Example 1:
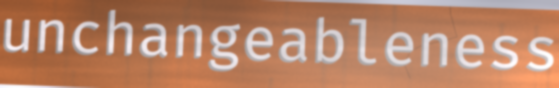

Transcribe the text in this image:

unchangeableness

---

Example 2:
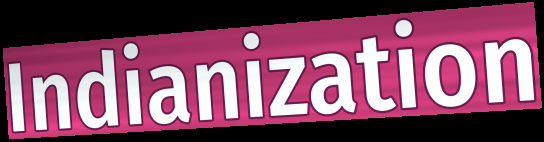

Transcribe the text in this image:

Indianization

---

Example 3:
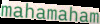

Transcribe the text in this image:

mahamaham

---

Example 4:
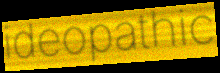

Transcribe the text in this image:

ideopathic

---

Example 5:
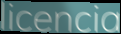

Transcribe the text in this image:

licencia